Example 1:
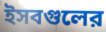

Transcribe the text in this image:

ইসবগুলের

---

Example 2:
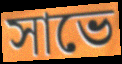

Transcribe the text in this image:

সাভে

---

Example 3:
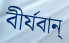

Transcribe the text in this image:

বীর্যবান্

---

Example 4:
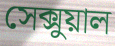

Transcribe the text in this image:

সেক্সুয়াল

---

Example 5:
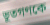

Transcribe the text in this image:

ভূতগণকে